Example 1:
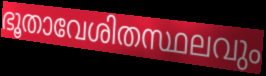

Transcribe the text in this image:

ഭൂതാവേശിതസ്ഥലവും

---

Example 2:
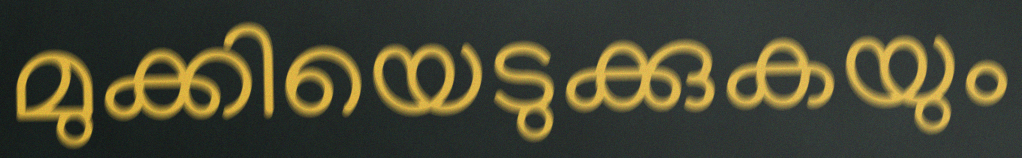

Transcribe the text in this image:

മുക്കിയെടുക്കുകയും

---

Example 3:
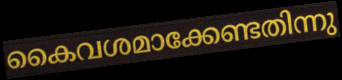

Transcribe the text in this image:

കൈവശമാക്കേണ്ടതിന്നു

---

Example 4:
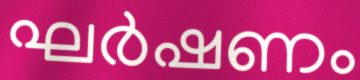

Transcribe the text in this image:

ഘർഷണം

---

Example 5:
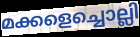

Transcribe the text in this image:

മക്കളെച്ചൊല്ലി